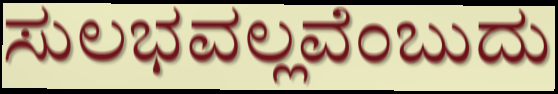
ಸುಲಭವಲ್ಲವೆಂಬುದು